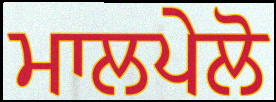
ਮਾਲਪੇਲੋ